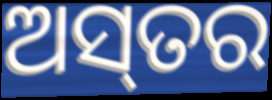
ଅସ୍‌ତର